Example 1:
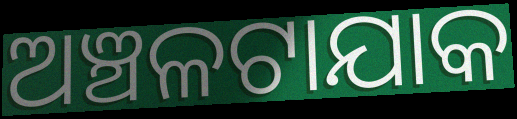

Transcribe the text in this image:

ଅଞ୍ଚଳଟାଯାକ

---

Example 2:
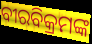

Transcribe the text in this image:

ବୀରବିକ୍ରମଙ୍କ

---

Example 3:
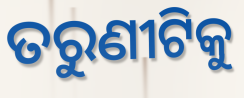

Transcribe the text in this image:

ତରୁଣୀଟିକୁ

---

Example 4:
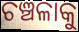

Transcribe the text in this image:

ଚଞ୍ଚଳାକୁ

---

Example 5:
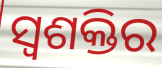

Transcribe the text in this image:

ସ୍ଵଶକ୍ତିର